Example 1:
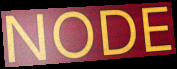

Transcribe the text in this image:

NODE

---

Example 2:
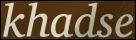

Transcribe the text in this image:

khadse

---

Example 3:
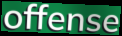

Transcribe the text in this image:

offense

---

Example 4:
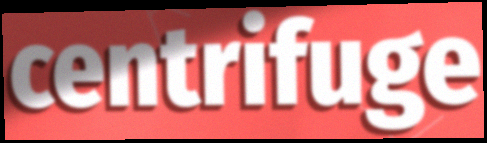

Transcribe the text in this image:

centrifuge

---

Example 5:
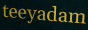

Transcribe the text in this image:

teeyadam